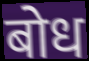
बोध